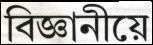
বিজ্ঞানীয়ে